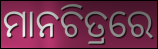
ମାନଚିତ୍ରରେ